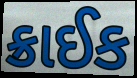
ક્રાઈક